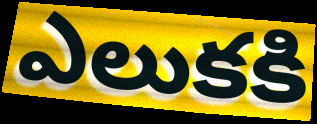
ఎలుకకి